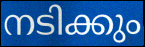
നടിക്കും